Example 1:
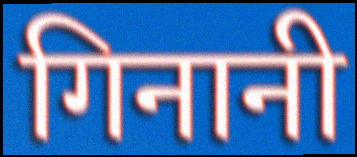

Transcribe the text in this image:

गिनानी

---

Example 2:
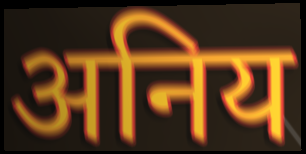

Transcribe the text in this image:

अनिय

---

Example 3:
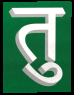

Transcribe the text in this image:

तु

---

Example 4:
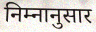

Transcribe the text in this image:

निम्नानुसार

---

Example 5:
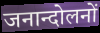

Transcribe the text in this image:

जनान्दोलनों